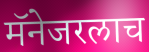
मॅनेजरलाच